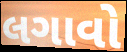
લગાવો